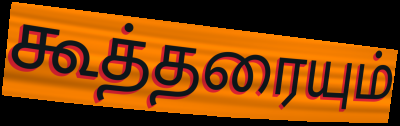
கூத்தரையும்